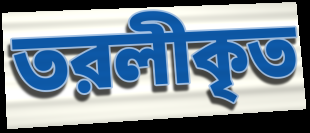
তরলীকৃত